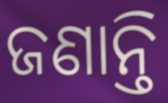
ଜଣାନ୍ତି